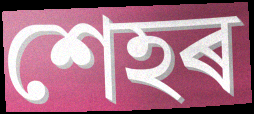
শেহৰ